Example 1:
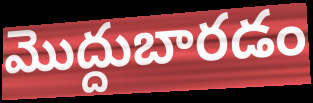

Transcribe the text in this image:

మొద్దుబారడం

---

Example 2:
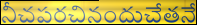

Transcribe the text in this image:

నీచపరచినందుచేతనే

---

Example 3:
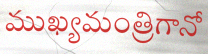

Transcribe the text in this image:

ముఖ్యమంత్రిగానో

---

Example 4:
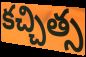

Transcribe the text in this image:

కచ్చిత్స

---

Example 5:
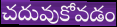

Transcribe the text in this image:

చదువుకోవడం